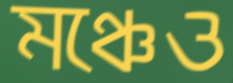
মঞ্চেও